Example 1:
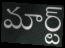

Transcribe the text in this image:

మార్ట్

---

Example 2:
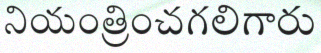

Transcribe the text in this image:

నియంత్రించగలిగారు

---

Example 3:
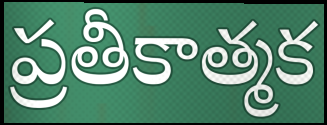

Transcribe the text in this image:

ప్రతీకాత్మక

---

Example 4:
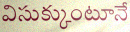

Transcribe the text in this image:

విసుక్కుంటూనే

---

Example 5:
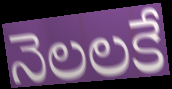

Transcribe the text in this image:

నెలలకే